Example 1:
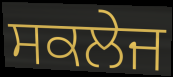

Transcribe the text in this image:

ਸਕਲੇਜ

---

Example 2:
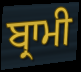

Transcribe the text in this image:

ਬ੍ਰਾਮੀ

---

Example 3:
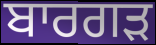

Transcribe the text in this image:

ਬਾਰਗੜ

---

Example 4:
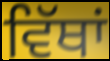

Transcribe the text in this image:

ਵਿੱਥਾਂ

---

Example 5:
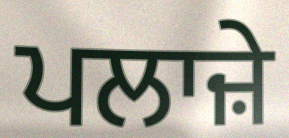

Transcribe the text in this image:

ਪਲਾਜ਼ੇ